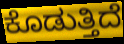
ಕೊಡುತ್ತಿದೆ